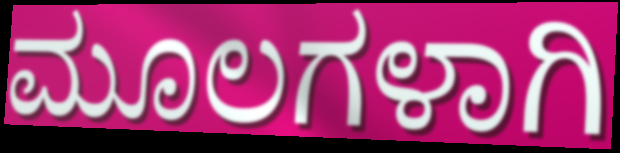
ಮೂಲಗಳಾಗಿ